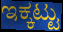
ಇಕ್ಕಟ್ಟು